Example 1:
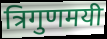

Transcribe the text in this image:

त्रिगुणमयी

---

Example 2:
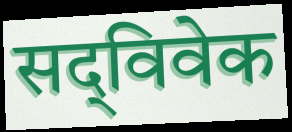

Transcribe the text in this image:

सद्‌विवेक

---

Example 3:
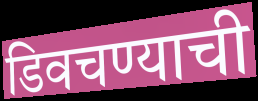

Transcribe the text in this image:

डिवचण्याची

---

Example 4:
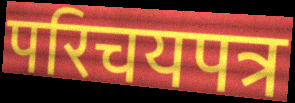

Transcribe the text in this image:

परिचयपत्र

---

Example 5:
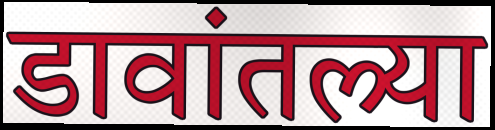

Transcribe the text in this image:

डावांतल्या